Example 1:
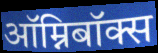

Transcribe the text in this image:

ऑम्निबॉक्स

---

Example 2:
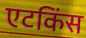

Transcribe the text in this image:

एटकिंस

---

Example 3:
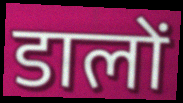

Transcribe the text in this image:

डालों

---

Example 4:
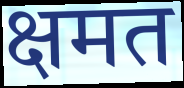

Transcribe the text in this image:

क्षमत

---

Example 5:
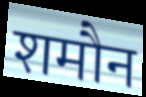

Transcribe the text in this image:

शमौन